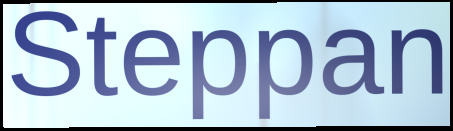
Steppan